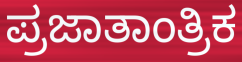
ಪ್ರಜಾತಾಂತ್ರಿಕ